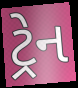
ટ્રેન